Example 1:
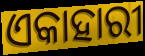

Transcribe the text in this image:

ଏକାହାରୀ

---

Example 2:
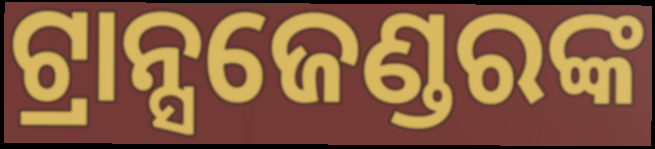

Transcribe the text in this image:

ଟ୍ରାନ୍ସଜେଣ୍ଡରଙ୍କ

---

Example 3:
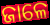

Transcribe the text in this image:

ଜାଳେ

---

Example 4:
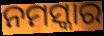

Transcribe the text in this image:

ନମସ୍କାର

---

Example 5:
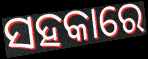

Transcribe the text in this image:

ସହକାରେ